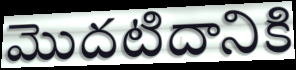
మొదటిదానికి